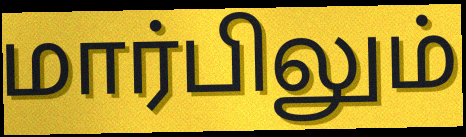
மார்பிலும்